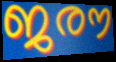
ജരൗ